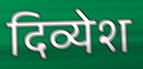
दिव्येश